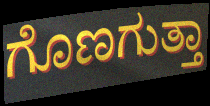
ಗೊಣಗುತ್ತಾ